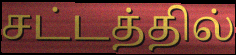
சட்டத்தில்